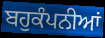
ਬਹੁਕੰਪਨੀਆਂ